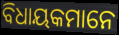
ବିଧାୟକମାନେ